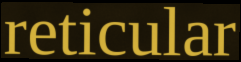
reticular